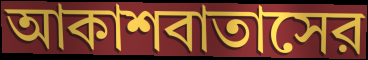
আকাশবাতাসের